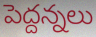
పెద్దన్నలు